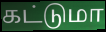
கட்டுமா